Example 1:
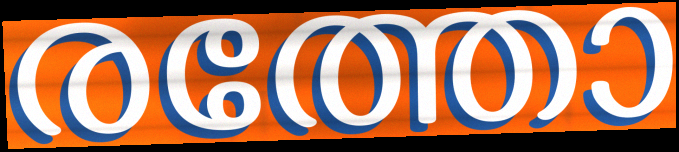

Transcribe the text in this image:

രത്തോ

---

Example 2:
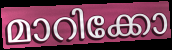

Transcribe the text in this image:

മാറിക്കോ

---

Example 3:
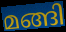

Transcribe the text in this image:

മങ്ങി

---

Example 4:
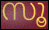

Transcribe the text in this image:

സൂ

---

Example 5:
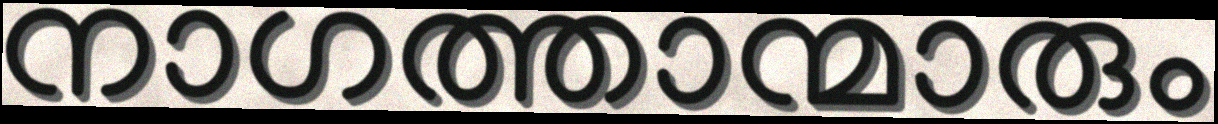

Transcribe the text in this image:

നാഗത്താന്മാരും